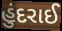
હુંદરાઈ